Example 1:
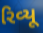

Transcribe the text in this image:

રિવ્યૂ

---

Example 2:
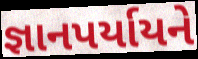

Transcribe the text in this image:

જ્ઞાનપર્યાયને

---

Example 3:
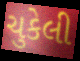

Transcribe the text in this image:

ચુકેલી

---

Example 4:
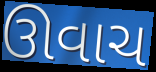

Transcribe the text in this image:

ઊવાચ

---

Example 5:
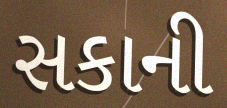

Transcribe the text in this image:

સકાની